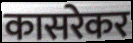
कासरेकर